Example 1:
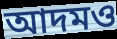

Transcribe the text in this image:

আদমও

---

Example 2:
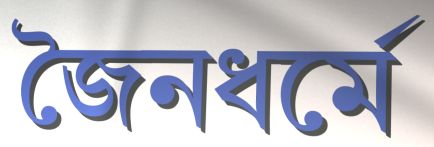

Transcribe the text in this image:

জৈনধর্মে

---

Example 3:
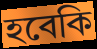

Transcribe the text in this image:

হবেকি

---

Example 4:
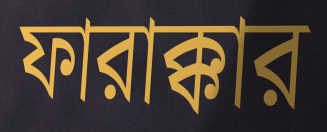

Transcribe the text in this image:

ফারাক্কার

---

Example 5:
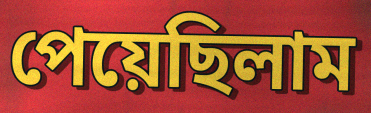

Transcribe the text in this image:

পেয়েছিলাম